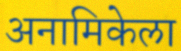
अनामिकेला